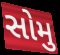
સોમુ